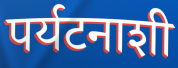
पर्यटनाशी